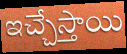
ఇచ్చేస్తాయి